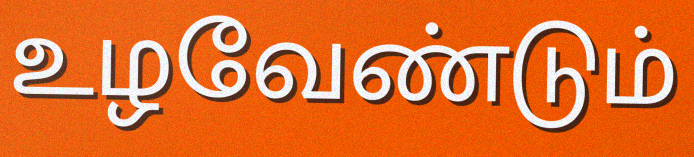
உழவேண்டும்